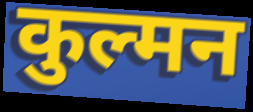
कुल्मन